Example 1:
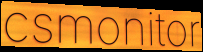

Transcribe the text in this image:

csmonitor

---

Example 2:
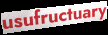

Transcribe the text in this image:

usufructuary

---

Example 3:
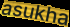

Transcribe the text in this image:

asukha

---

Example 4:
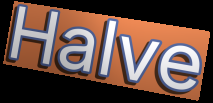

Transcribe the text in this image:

Halve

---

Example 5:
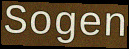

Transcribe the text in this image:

Sogen